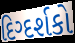
દિગ્દર્શકો